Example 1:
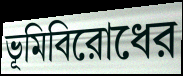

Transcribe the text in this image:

ভূমিবিরোধের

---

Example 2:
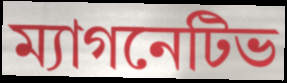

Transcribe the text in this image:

ম্যাগনেটিভ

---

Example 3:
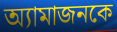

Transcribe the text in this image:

অ্যামাজনকে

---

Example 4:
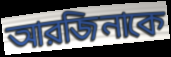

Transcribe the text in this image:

আরজিনাকে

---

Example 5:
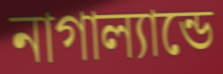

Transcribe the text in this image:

নাগাল্যান্ডে